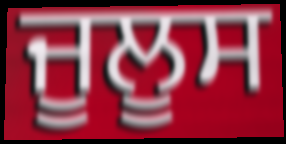
ਜੂਲੂਸ